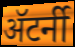
ॲटर्नी